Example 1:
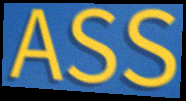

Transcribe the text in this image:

ASS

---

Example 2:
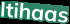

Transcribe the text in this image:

Itihaas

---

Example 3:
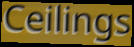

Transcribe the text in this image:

Ceilings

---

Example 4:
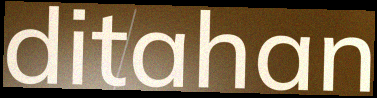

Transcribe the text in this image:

ditahan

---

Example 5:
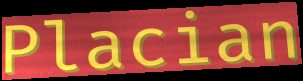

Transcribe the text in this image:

Placian